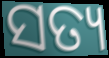
ସତ୍ୟ